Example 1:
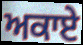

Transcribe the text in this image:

ਅਕਾਏ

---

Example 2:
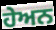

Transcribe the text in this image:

ਹੇਅਨ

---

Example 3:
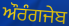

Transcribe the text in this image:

ਔਰੰਗਜੇਬ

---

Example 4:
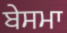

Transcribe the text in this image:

ਬੇਸਮਾ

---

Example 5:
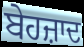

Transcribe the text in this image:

ਬੇਹਜ਼ਾਦ